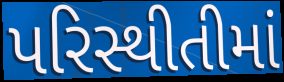
પરિસ્થીતીમાં